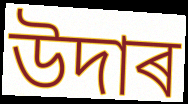
উদাৰ